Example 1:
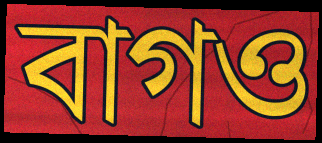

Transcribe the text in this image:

বাগও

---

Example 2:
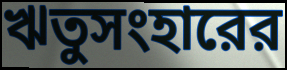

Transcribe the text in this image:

ঋতুসংহারের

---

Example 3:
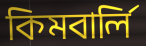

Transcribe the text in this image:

কিমবার্লি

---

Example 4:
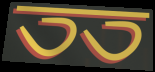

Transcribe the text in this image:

তত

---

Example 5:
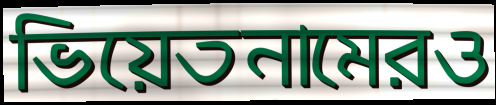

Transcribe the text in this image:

ভিয়েতনামেরও